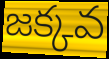
జక్కవ